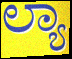
ಲ್ಯಾ